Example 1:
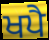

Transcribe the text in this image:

ਖਪੈ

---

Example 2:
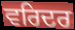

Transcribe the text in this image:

ਵਰਿਦਰ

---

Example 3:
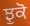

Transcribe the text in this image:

ਝੁਕੋ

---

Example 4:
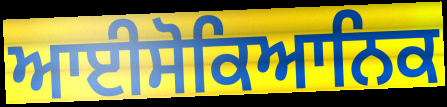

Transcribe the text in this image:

ਆਈਸੋਕਿਆਨਿਕ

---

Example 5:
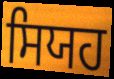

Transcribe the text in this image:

ਸਿਯਹ